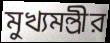
মুখ্যমন্ত্রীর